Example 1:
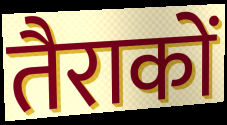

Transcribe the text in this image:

तैराकों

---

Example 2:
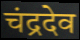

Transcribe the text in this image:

चंद्रदेव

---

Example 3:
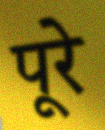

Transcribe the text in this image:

पूरे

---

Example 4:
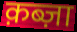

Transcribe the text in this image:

क़ब्ज़ा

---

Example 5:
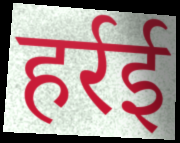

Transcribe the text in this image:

हर्रई